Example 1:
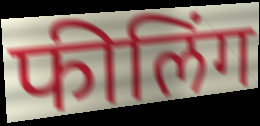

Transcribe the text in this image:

फीलिंग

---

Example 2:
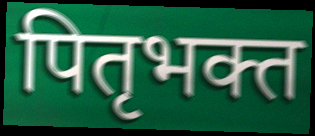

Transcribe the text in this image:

पितृभक्त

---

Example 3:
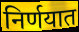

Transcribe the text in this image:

निर्णयात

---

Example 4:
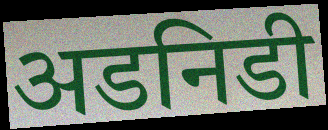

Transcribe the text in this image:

अडनिडी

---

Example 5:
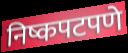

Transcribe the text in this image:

निष्कपटपणे